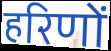
हरिणों